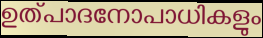
ഉത്പാദനോപാധികളും